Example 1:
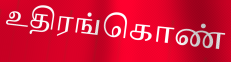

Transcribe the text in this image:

உதிரங்கொண்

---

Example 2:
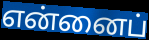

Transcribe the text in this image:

என்னைப்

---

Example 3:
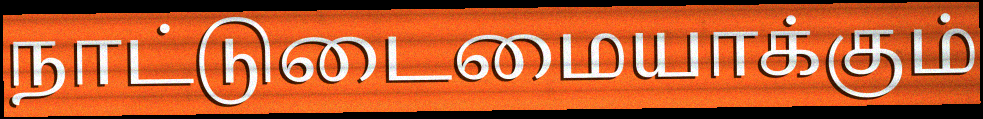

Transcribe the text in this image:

நாட்டுடைமையாக்கும்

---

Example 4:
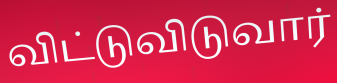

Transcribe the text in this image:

விட்டுவிடுவார்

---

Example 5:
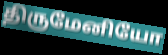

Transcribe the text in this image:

திருமேனியோ